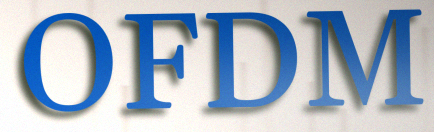
OFDM